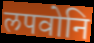
लपवोनि